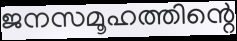
ജനസമൂഹത്തിന്റെ